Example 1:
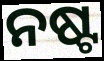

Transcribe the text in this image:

ନଷ୍ଟ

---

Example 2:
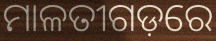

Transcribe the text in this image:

ମାଳତୀଗଡ଼ରେ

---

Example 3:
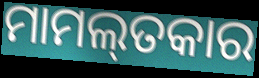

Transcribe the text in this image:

ମାମଲ୍‌ତକାର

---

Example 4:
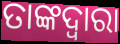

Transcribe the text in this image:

ତାଙ୍କଦ୍ୱାରା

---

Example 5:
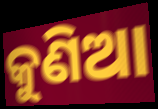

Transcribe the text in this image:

କୁଣିଆ